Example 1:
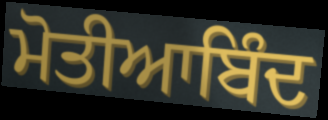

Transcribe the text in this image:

ਮੋਤੀਆਬਿੰਦ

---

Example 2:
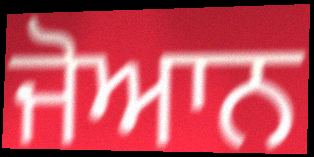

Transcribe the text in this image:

ਜੋਆਨ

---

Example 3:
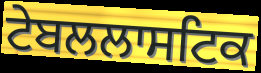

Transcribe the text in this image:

ਟੇਬਲਲਾਸਟਿਕ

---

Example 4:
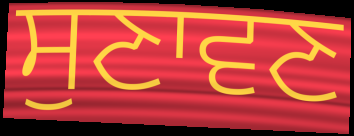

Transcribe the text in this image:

ਸੁਣਾਵਣ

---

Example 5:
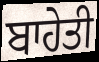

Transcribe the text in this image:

ਬਾਹੇਤੀ